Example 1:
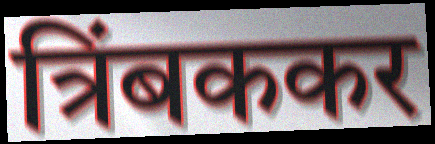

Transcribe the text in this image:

त्रिंबककर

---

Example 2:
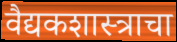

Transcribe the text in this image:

वैद्यकशास्त्राचा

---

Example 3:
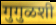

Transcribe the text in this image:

गुगुळशी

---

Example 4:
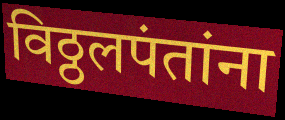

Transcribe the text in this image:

विठ्ठलपंतांना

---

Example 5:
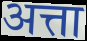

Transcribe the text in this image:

अत्ता